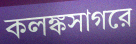
কলঙ্কসাগরে